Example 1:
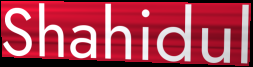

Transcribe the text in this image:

Shahidul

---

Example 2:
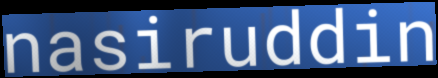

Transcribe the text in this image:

nasiruddin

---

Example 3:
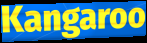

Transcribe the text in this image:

Kangaroo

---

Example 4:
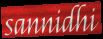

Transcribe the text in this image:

sannidhi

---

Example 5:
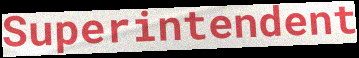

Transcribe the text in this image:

Superintendent